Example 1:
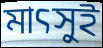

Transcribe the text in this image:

মাৎসুই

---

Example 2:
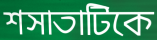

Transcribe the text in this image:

শসাতাটিকে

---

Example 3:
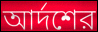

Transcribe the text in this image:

আর্দশের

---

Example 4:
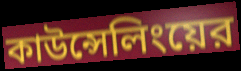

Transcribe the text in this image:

কাউন্সেলিংয়ের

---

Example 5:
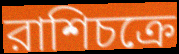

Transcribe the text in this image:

রাশিচক্রে